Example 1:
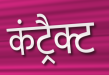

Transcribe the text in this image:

कंट्रैक्ट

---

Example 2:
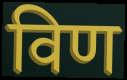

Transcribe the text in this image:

विण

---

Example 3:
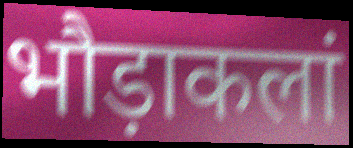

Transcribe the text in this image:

भौड़ाकलां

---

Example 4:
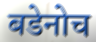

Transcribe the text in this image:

बडेनोच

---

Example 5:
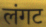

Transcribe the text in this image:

लंगट